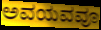
ಅವಯವವೂ